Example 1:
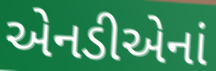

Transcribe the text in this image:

એનડીએનાં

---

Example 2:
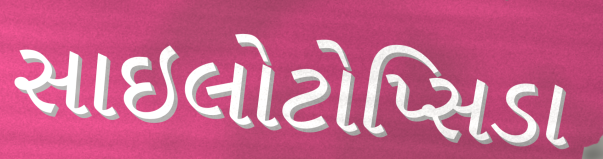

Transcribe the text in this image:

સાઇલોટોપ્સિડા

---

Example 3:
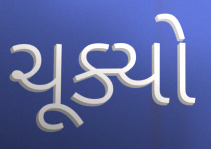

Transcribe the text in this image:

ચૂક્યો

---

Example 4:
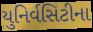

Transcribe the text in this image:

યુનિર્વસિટીના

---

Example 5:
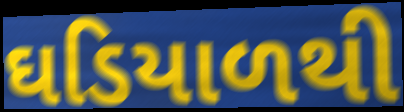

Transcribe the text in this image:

ઘડિયાળથી